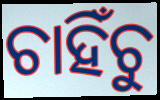
ଚାହିଁଚୁ